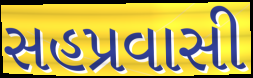
સહપ્રવાસી